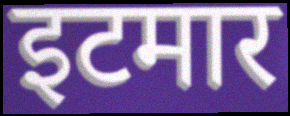
इटमार